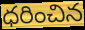
ధరించిన